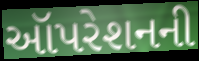
ઑપરેશનની